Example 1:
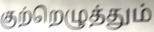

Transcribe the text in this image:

குற்றெழுத்தும்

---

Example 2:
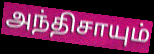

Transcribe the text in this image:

அந்திசாயும்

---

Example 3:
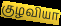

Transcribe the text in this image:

குழவியா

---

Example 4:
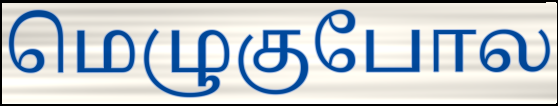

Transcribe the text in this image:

மெழுகுபோல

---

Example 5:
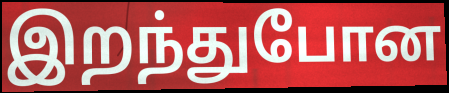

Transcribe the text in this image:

இறந்துபோன